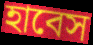
হাবেস